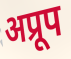
अप्रूप